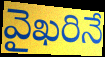
వైఖరినే